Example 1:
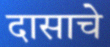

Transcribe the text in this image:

दासाचे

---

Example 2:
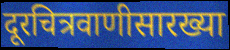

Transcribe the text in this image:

दूरचित्रवाणीसारख्या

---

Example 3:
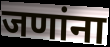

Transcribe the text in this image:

जणांना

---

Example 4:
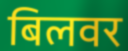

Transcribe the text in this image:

बिलवर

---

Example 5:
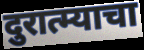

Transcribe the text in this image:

दुरात्म्याचा